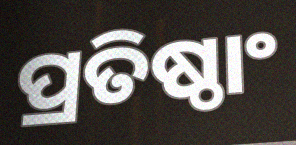
ପ୍ରତିଷ୍ଠାଂ